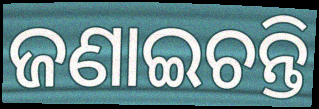
ଜଣାଇଚନ୍ତି